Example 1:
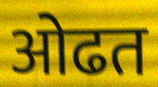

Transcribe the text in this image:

ओढत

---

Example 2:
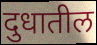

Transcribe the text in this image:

दुधातील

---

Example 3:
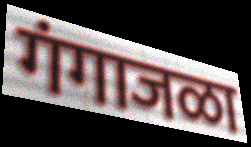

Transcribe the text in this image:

गंगाजळा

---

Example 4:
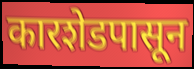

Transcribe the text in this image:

कारशेडपासून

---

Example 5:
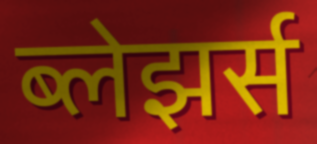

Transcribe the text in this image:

ब्लेझर्स